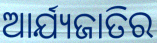
ଆର୍ଯ୍ୟଜାତିର